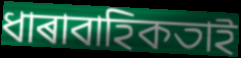
ধাৰাবাহিকতাই